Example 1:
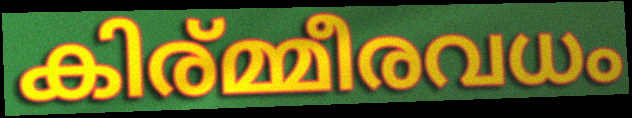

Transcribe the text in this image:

കിര്മ്മീരവധം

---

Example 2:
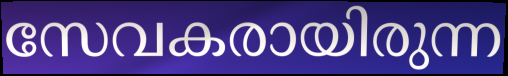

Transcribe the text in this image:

സേവകരായിരുന്ന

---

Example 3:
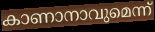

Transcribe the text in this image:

കാണാനാവുമെന്ന്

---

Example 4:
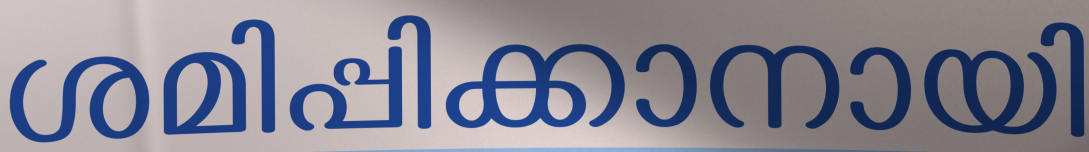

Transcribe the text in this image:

ശമിപ്പിക്കാനായി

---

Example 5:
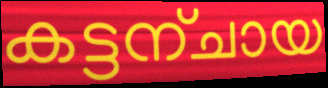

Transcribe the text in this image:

കട്ടന്ചായ